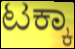
ಟಕ್ಕಾ